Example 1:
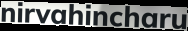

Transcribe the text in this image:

nirvahincharu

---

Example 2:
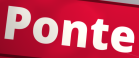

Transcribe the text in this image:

Ponte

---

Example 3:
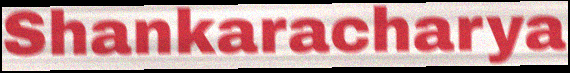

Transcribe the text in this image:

Shankaracharya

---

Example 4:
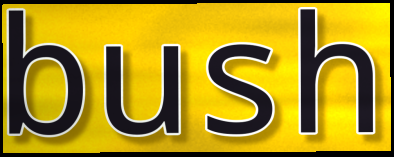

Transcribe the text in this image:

bush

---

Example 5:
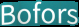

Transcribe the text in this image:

Bofors